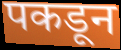
पकडून